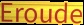
Eroude